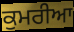
ਕੁਮਰੀਆ